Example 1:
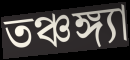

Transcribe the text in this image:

তঞ্চঙ্গ্যা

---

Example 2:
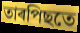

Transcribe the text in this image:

তাৰপিছতে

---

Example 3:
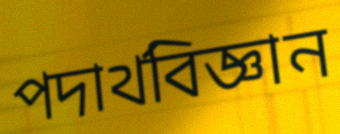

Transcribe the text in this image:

পদাৰ্থবিজ্ঞান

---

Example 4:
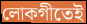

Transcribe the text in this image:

লোকগীতেই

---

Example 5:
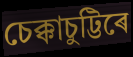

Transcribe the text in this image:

চেক্কাচুট্টিৰে